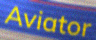
Aviator